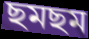
ছমছম